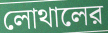
লোথালের